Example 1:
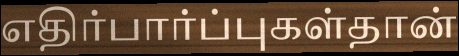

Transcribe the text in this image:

எதிர்பார்ப்புகள்தான்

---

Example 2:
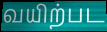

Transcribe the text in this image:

வயிற்பட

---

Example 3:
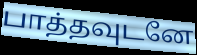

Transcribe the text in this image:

பாத்தவுடனே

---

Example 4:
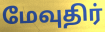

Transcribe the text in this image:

மேவுதிர்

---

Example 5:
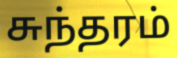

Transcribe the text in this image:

சுந்தரம்